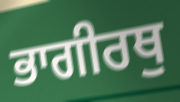
ਭਾਗੀਰਥੁ